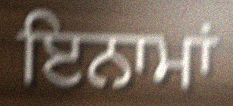
ਇਨਾਮਾਂ